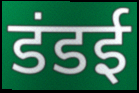
डंडई